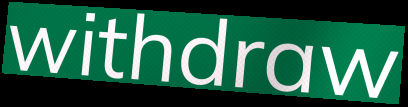
withdraw